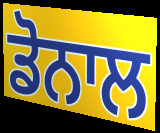
ਡੋਨਾਲ